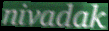
nivadak